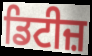
ਡਿਟੀਜ਼